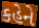
કહેને